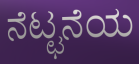
ನೆಟ್ಟನೆಯ